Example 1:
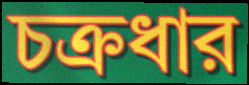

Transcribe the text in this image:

চক্রধার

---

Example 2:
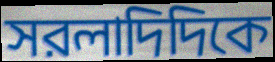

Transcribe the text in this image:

সরলাদিদিকে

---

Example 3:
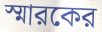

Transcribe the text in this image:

স্মারকের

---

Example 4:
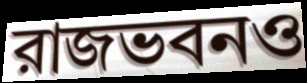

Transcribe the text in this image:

রাজভবনও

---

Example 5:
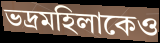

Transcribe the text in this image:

ভদ্রমহিলাকেও